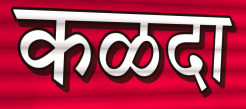
कळदा